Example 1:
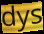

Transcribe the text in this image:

dys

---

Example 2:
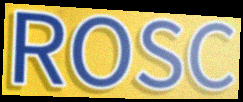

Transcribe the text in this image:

ROSC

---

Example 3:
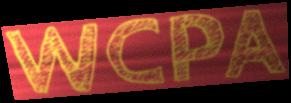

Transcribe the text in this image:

WCPA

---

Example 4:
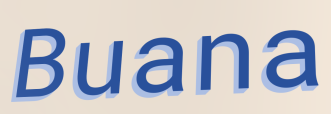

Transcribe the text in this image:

Buana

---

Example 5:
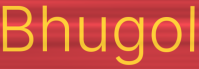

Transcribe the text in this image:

Bhugol